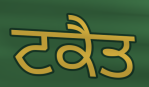
ਟਕੈਤ